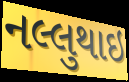
નલ્લુથાઇ